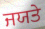
ਜਯਤੇ